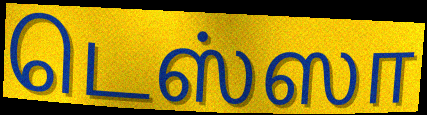
டெஸ்ஸா